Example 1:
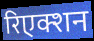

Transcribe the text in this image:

रिएक्शन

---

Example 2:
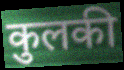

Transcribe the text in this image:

कुलकी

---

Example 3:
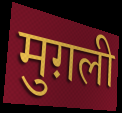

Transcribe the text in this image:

मुग़ली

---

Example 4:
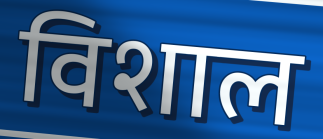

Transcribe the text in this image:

विशाल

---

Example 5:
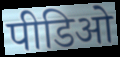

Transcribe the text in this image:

पीडिओ